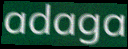
adaga